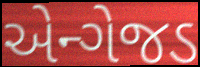
એન્ગેજડ